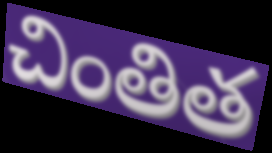
చింతిత